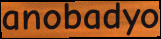
anobadyo